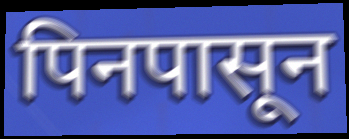
पिनपासून